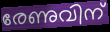
രേണുവിന്